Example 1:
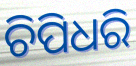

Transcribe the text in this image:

ଚିପିଧରି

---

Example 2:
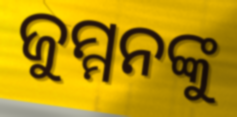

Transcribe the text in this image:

ଜୁମ୍ମନଙ୍କୁ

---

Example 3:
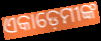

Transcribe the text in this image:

ଏକାଡ଼େମୀଙ୍କ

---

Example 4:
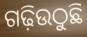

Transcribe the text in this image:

ଗଢ଼ିଉଠୁଛି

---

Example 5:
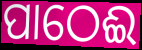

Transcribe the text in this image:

ପାଠେଈ